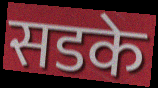
सडके